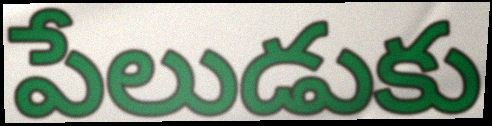
పేలుడుకు